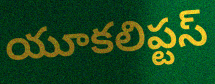
యూకలిప్టస్